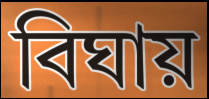
বিঘায়